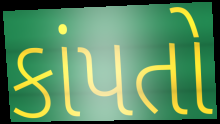
કાંપતો